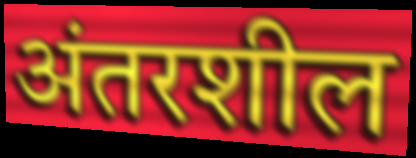
अंतरशील